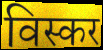
विस्कर